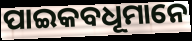
ପାଇକବଧୂମାନେ